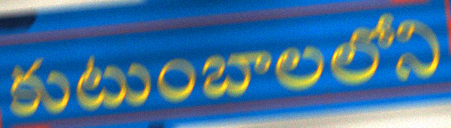
కుటుంబాలలోని